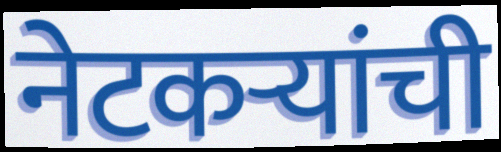
नेटकऱ्यांची